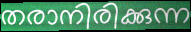
തരാനിരിക്കുന്ന